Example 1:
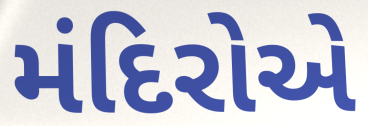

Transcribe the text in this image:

મંદિરોએ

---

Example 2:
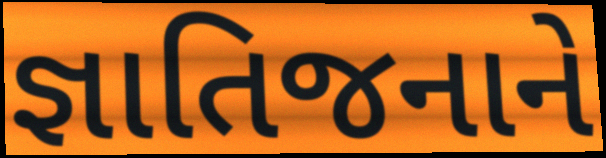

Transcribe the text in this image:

જ્ઞાતિજનાને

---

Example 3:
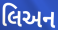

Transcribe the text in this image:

લિઅન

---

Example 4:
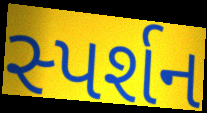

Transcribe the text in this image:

સ્પર્શન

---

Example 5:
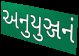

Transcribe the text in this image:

અનુયુઞ્જનં